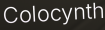
Colocynth